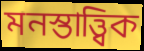
মনস্তাত্ত্বিক